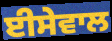
ਈਸੇਵਾਲ